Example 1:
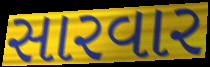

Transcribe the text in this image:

સારવાર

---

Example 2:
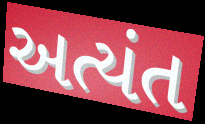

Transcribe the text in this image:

અત્યંત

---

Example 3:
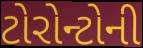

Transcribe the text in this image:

ટોરોન્ટોની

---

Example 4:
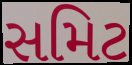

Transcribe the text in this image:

સમિટ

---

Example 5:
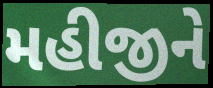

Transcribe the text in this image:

મહીજીને